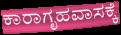
ಕಾರಾಗೃಹವಾಸಕ್ಕೆ